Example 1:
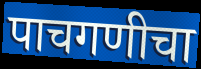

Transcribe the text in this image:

पाचगणीचा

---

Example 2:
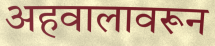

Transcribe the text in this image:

अहवालावरून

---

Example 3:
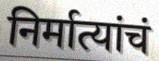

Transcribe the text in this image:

निर्मात्यांचं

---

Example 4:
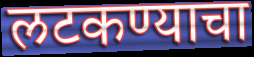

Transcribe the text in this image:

लटकण्याचा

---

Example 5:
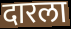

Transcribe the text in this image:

दारला